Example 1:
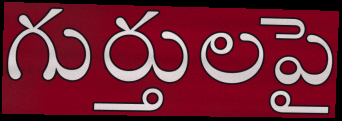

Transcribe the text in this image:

గుర్తులపై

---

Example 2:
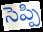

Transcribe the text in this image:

సెప్పి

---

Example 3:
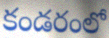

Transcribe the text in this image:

కండరంలో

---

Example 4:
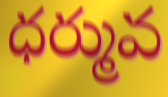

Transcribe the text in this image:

ధర్మువ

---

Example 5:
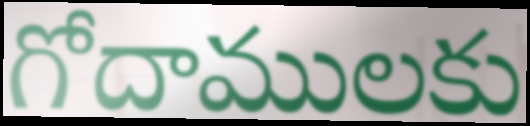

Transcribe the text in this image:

గోదాములకు